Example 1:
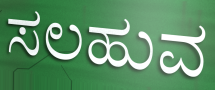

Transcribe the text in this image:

ಸಲಹುವ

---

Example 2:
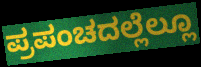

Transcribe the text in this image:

ಪ್ರಪಂಚದಲ್ಲೆಲ್ಲೂ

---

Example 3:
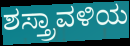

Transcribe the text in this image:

ಶಸ್ತ್ರಾವಳಿಯ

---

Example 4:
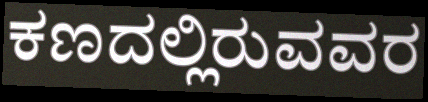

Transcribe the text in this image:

ಕಣದಲ್ಲಿರುವವರ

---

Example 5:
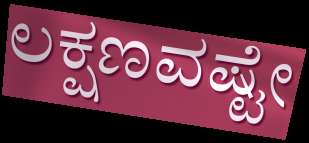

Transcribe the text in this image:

ಲಕ್ಷಣವಷ್ಟೇ